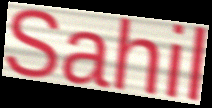
Sahil